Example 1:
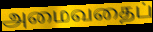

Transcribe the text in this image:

அமைவதைப்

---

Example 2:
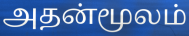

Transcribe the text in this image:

அதன்மூலம்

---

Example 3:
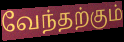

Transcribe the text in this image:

வேந்தற்கும்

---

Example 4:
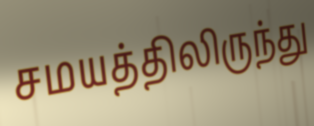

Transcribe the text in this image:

சமயத்திலிருந்து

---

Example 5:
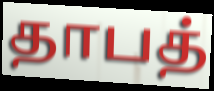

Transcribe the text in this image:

தாபத்